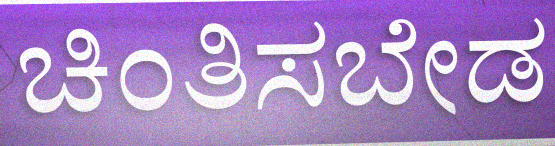
ಚಿಂತಿಸಬೇಡ